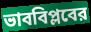
ভাববিপ্লবের